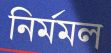
নির্মমল